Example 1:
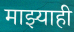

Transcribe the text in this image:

माझ्याही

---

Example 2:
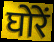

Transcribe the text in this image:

घोरें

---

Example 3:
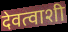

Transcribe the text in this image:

देवत्वाशी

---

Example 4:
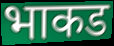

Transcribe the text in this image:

भाकड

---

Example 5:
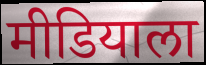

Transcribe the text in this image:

मीडियाला